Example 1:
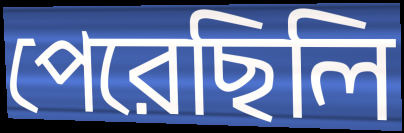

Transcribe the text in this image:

পেরেছিলি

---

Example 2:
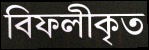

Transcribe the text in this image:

বিফলীকৃত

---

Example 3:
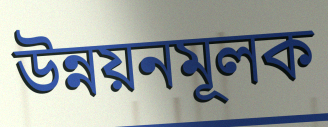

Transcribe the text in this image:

উন্নয়নমূলক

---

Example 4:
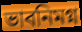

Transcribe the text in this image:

ভাবনিমগ্ন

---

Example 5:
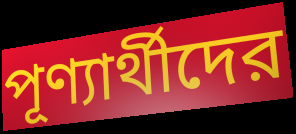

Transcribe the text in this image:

পূণ্যার্থীদের